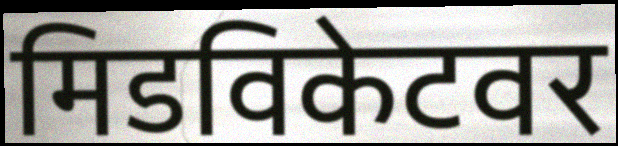
मिडविकेटवर